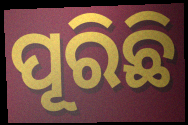
ପୂରିଛି